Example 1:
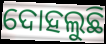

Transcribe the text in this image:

ଦୋହଲୁଛି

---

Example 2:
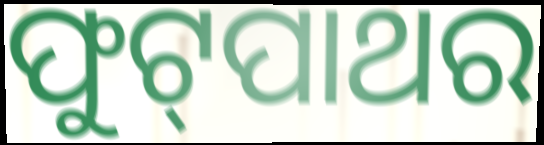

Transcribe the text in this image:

ଫୁଟ୍‌ପାଥର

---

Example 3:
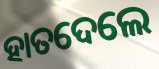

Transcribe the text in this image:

ହାତଦେଲେ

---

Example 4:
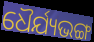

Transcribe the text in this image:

ଧୈର୍ଯ୍ୟଭଙ୍ଗ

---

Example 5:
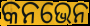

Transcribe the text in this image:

କନଭେନ